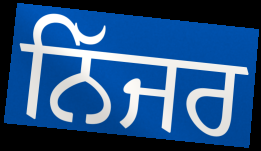
ਨਿੱਜਰ